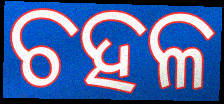
ଚହଳ